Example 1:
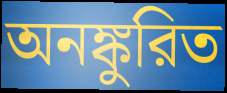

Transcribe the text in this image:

অনঙ্কুরিত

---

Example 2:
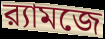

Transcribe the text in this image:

র‍্যামজে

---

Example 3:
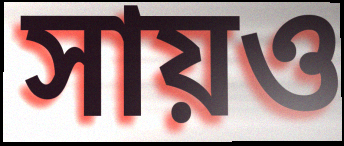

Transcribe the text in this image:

সায়ও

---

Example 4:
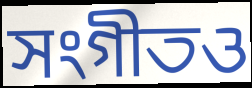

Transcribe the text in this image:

সংগীতও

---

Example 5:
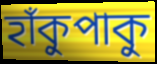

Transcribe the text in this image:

হাঁকুপাকু